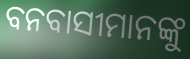
ବନବାସୀମାନଙ୍କୁ